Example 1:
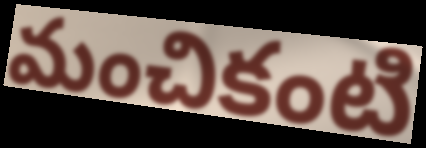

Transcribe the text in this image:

మంచికంటి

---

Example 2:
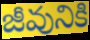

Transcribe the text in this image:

జీవునికి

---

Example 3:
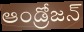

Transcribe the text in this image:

ఆండ్రోజన్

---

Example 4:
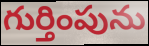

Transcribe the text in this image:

గుర్తింపును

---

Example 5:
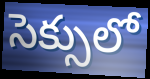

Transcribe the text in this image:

సెక్సులో